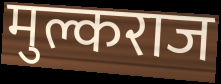
मुल्कराज